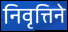
निवृत्तिने